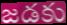
జడకు